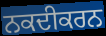
ਨਕਦੀਕਰਨ